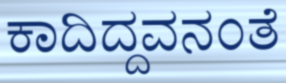
ಕಾದಿದ್ದವನಂತೆ